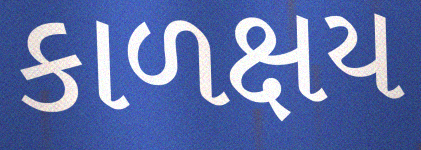
કાળક્ષય